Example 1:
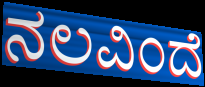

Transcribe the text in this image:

ನಲವಿಂದೆ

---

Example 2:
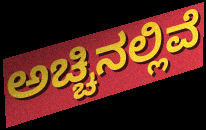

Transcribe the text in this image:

ಅಚ್ಚಿನಲ್ಲಿವೆ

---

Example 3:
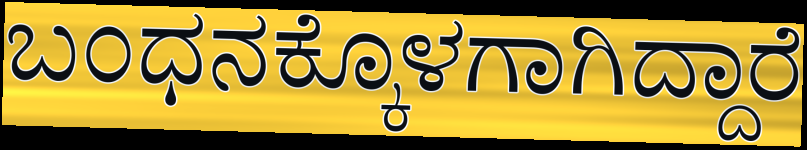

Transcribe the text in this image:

ಬಂಧನಕ್ಕೊಳಗಾಗಿದ್ದಾರೆ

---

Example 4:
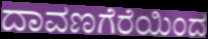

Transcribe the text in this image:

ದಾವಣಗೆರೆಯಿಂದ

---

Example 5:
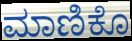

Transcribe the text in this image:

ಮಾಣಿಕೊ